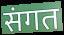
संगत